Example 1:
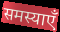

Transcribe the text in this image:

समस्याएँ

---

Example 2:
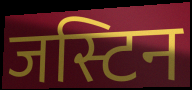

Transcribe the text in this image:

जस्‍टिन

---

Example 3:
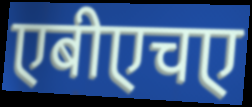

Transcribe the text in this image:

एबीएचए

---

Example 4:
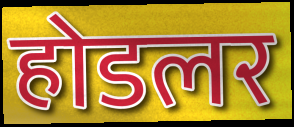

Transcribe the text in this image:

होडलर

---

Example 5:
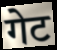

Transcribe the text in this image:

गेट